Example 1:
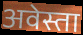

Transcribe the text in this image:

अवेस्ता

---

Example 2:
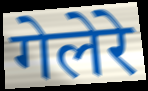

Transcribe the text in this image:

गेलेरे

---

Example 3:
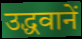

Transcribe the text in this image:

उद्धवानें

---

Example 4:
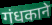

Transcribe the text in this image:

गंधकाने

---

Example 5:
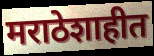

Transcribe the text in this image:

मराठेशाहीत